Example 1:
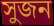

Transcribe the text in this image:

সুজন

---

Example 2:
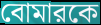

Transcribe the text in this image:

বোমারকে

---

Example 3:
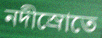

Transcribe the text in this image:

নদীস্রোতে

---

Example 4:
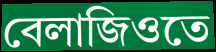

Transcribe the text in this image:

বেলাজিওতে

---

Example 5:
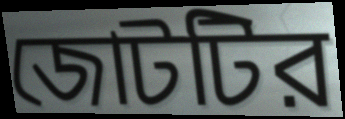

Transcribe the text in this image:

জোটটির